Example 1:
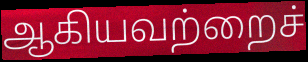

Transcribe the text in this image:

ஆகியவற்றைச்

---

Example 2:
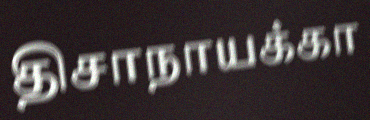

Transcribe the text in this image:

திசாநாயக்கா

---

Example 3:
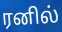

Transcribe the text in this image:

ரனில்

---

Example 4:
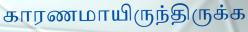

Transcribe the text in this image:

காரணமாயிருந்திருக்க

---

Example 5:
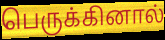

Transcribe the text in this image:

பெருக்கினால்